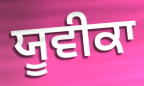
ਯੂਵੀਕਾ